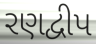
રણદ્વીપ